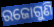
ରଜୋଗୁଣି